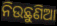
ନିଉଛୁଣିଆ